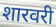
शारवरी